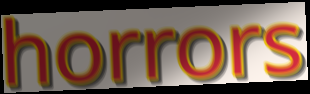
horrors